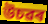
উচৱৰ